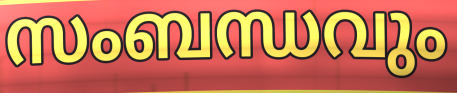
സംബന്ധവും